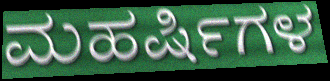
ಮಹರ್ಷಿಗಳ